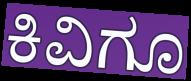
ಕಿವಿಗೂ